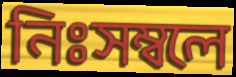
নিঃসম্বলে